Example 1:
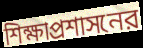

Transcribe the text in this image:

শিক্ষাপ্রশাসনের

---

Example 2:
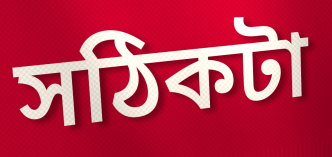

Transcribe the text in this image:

সঠিকটা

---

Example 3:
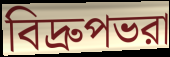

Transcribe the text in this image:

বিদ্রুপভরা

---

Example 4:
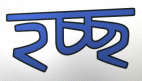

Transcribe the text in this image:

হচ্ছ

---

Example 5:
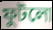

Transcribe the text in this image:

ফুটলো